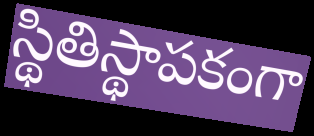
స్థితిస్థాపకంగా